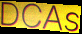
DCAs